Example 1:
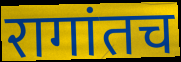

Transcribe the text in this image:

रागांतच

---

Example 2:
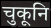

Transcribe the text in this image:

चुकूनि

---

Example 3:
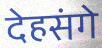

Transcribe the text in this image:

देहसंगे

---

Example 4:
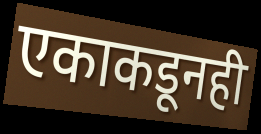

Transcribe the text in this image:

एकाकडूनही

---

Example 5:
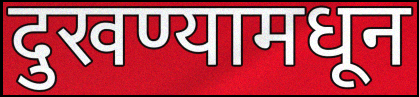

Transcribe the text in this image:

दुखण्यामधून